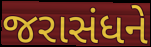
જરાસંધને